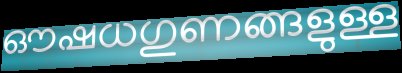
ഔഷധഗുണങ്ങളുള്ള